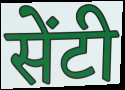
सेंटी